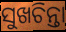
ସୁଖଚିନ୍ତା